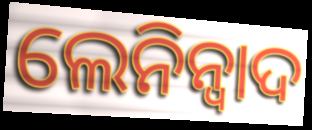
ଲେନିନ୍ବାଦ